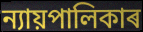
ন্যায়পালিকাৰ